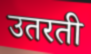
उतरती